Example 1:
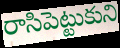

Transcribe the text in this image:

రాసిపెట్టుకుని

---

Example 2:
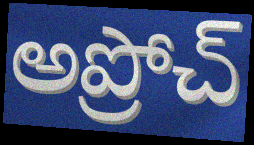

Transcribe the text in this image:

అప్రోచ్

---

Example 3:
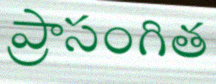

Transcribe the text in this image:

ప్రాసంగిత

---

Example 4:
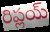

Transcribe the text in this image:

రిప్లయ్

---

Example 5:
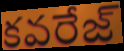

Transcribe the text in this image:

కవరేజ్